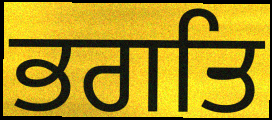
ਭਗਤਿ